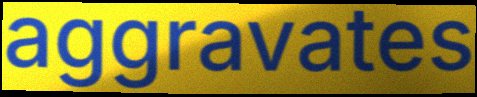
aggravates